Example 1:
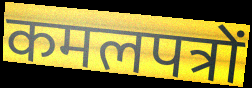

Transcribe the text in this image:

कमलपत्रों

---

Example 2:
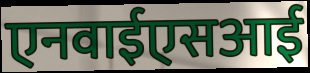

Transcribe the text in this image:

एनवाईएसआई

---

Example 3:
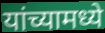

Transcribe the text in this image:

यांच्यामध्ये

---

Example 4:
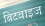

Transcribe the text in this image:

बिटवाइज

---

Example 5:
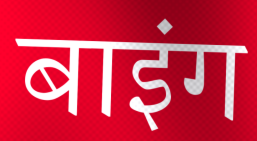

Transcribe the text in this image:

बाइंग